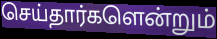
செய்தார்களென்றும்